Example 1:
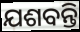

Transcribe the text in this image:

ଯଶବନ୍ତି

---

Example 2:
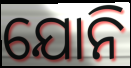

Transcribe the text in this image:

ଯୋନି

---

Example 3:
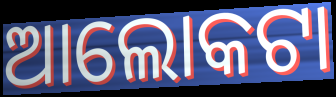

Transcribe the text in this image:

ଆଲୋକଟା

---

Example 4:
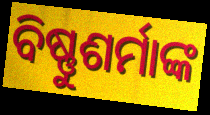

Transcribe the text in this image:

ବିଷ୍ଣୁଶର୍ମାଙ୍କ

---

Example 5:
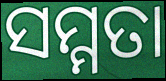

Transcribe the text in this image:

ସମ୍ମତା